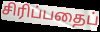
சிரிப்பதைப்